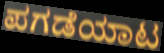
ಪಗಡೆಯಾಟ